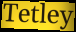
Tetley